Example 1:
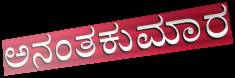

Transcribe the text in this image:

ಅನಂತಕುಮಾರ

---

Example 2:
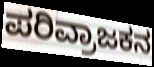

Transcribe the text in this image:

ಪರಿವ್ರಾಜಕನ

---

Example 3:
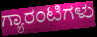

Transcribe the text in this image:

ಗ್ಯಾರಂಟಿಗಳು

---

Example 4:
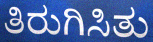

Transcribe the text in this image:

ತಿರುಗಿಸಿತು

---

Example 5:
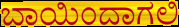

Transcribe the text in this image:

ಬಾಯಿಂದಾಗಲಿ